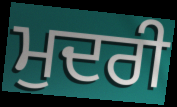
ਮੁਦਰੀ